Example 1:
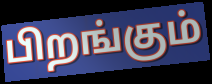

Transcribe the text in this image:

பிறங்கும்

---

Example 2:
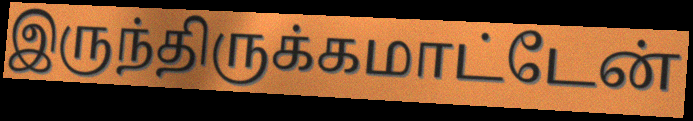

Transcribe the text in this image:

இருந்திருக்கமாட்டேன்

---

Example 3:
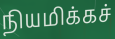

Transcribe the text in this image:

நியமிக்கச்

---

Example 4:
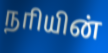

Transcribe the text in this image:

நரியின்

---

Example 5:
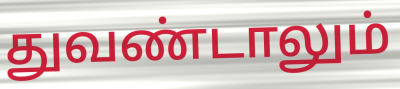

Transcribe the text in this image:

துவண்டாலும்